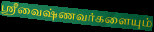
ஸ்ரீவைஷ்ணவர்களையும்